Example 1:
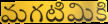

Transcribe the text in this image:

మగటిమికి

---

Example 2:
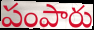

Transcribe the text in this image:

పంపారు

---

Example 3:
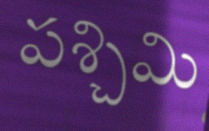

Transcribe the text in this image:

పశ్చిమి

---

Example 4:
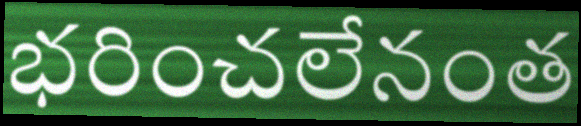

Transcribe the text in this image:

భరించలేనంత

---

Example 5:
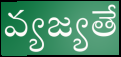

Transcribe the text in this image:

వ్యజ్యతే